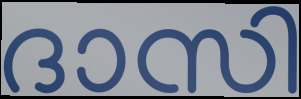
ദാസി